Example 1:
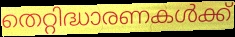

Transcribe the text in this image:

തെറ്റിദ്ധാരണകൾക്ക്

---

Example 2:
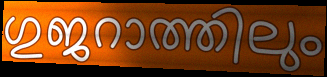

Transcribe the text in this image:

ഗുജറാത്തിലും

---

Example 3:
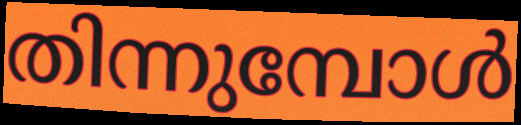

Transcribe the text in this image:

തിന്നുമ്പോൾ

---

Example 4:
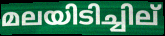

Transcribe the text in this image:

മലയിടിച്ചില്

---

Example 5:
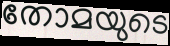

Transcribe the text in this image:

തോമയുടെ